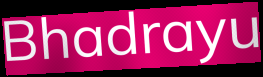
Bhadrayu